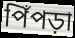
পিঁপড়া